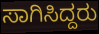
ಸಾಗಿಸಿದ್ದರು